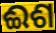
ଈଶ